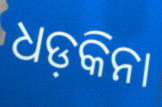
ଧଡ଼କିନା